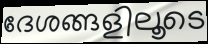
ദേശങ്ങളിലൂടെ